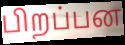
பிறப்பன